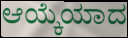
ಆಯ್ಕೆಯಾದ